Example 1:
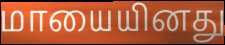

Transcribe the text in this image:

மாயையினது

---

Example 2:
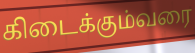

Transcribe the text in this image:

கிடைக்கும்வரை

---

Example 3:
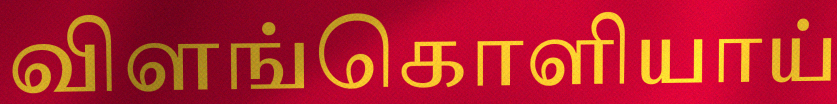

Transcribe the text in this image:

விளங்கொளியாய்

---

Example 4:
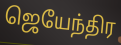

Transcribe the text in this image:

ஜெயேந்திர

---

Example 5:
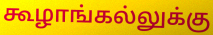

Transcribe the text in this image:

கூழாங்கல்லுக்கு